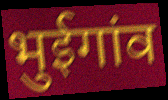
भुईगांव